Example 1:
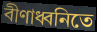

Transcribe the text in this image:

বীণাধ্বনিতে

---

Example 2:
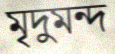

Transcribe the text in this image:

মৃদুমন্দ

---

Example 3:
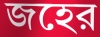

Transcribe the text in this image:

জহের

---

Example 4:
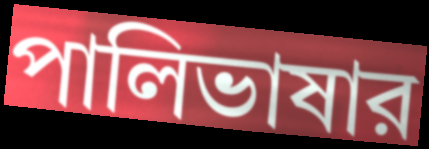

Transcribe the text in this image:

পালিভাষার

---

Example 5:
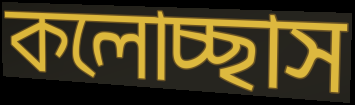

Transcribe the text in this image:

কলোচ্ছাস